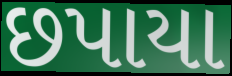
છપાયા